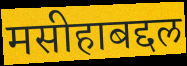
मसीहाबद्दल